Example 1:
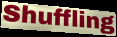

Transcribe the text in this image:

Shuffling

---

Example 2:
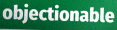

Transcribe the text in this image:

objectionable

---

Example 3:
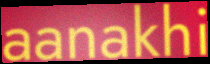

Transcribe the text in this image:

aanakhi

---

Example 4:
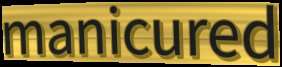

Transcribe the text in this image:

manicured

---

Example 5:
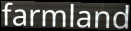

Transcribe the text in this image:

farmland